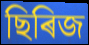
ছিৰিজ